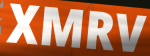
XMRV